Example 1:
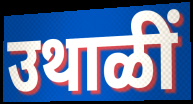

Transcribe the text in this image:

उथाळीं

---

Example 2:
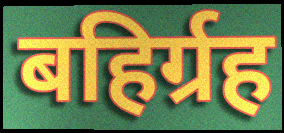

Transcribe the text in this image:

बहिर्ग्रह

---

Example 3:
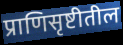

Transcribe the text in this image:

प्राणिसृष्टीतील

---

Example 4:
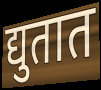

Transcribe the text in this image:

द्युतात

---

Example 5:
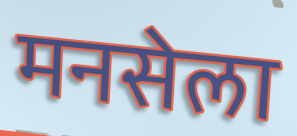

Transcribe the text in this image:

मनसेला